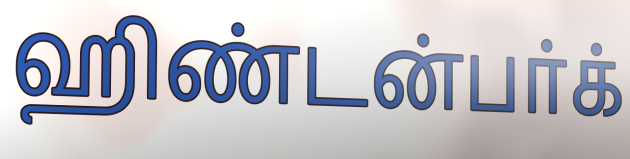
ஹிண்டன்பர்க்